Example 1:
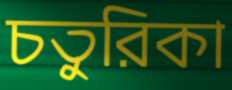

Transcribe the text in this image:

চতুরিকা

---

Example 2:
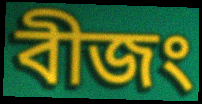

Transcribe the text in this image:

বীজং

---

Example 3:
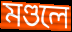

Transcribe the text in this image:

মণ্ডলে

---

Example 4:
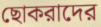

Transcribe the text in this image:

ছোকরাদের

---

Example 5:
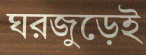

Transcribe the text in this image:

ঘরজুড়েই